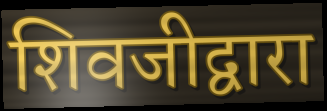
शिवजीद्वारा